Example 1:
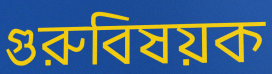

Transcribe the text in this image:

গুরুবিষয়ক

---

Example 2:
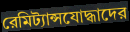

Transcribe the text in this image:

রেমিট্যান্সযোদ্ধাদের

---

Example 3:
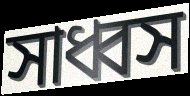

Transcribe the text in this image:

সাধ্বস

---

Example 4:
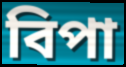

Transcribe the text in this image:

বিপা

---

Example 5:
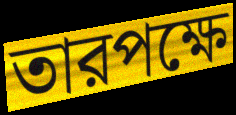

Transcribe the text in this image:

তারপক্ষে